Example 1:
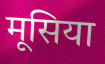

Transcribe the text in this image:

मूसिया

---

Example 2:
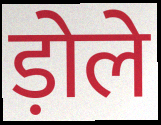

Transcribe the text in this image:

ड़ोले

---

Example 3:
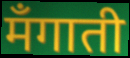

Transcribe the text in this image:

मँगाती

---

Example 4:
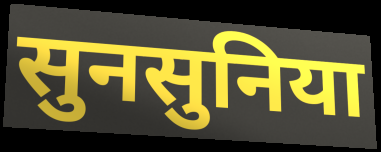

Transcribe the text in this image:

सुनसुनिया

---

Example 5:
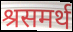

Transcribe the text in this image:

श्रसमर्थ